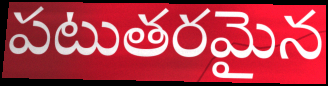
పటుతరమైన